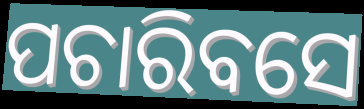
ପଚାରିବସେ